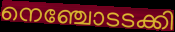
നെഞ്ചോടടക്കി